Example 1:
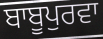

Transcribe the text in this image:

ਬਾਬੂਪੁਰਵਾ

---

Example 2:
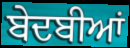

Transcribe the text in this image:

ਬੇਦਬੀਆਂ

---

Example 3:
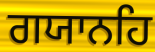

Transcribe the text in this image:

ਗਯਾਨਹਿ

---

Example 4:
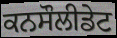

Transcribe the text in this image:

ਕਨਸੌਲੀਡੇਟ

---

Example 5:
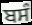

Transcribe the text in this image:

ਬਸੰ